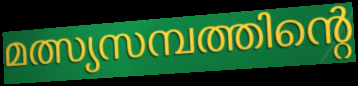
മത്സ്യസമ്പത്തിന്റെ